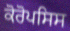
ਕੋਰੋਪਸਿਸ